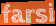
farsi